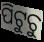
ପିଟୁଚୁ